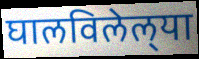
घालविलेल्या